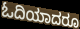
ಓದಿಯಾದರೂ